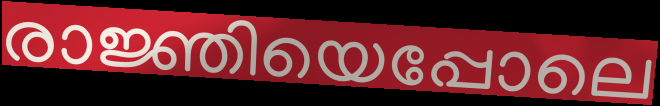
രാജ്ഞിയെപ്പോലെ